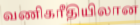
வணிகரீதியிலான